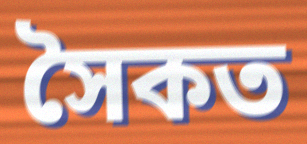
সৈকত